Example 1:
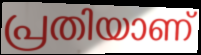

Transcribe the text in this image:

പ്രതിയാണ്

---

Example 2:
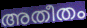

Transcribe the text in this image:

അതീതം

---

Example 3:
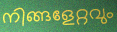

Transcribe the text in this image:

നിങ്ങളേറ്റവും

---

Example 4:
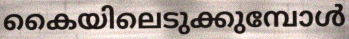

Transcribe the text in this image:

കൈയിലെടുക്കുമ്പോൾ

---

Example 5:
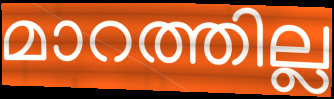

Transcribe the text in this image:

മാറത്തില്ല